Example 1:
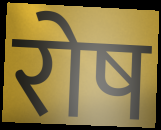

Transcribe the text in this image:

रोष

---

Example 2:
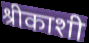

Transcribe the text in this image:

श्रीकाशी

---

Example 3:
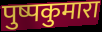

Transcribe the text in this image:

पुष्पकुमारा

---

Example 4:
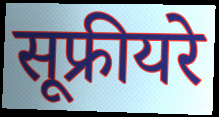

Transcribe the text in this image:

सूफ्रीयरे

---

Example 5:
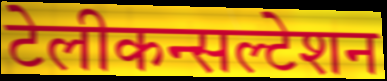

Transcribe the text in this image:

टेलीकन्सल्टेशन